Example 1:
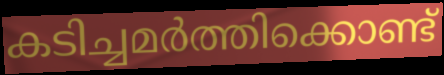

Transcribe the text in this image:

കടിച്ചമർത്തിക്കൊണ്ട്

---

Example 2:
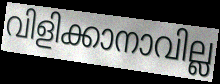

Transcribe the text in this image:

വിളിക്കാനാവില്ല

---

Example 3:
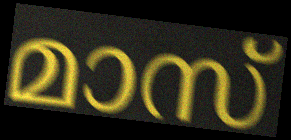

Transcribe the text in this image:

മാസ്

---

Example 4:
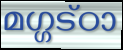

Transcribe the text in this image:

മഗ്ഗട്ഠാ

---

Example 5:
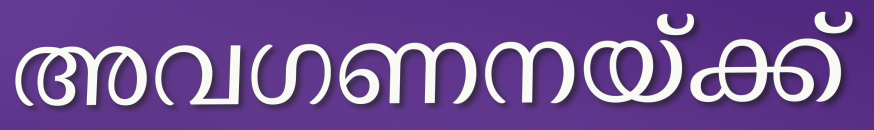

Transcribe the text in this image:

അവഗണനയ്ക്ക്